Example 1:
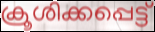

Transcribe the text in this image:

ക്രൂശിക്കപ്പെട്ട്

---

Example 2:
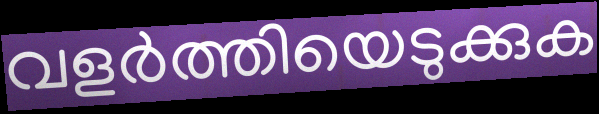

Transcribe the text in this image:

വളർത്തിയെടുക്കുക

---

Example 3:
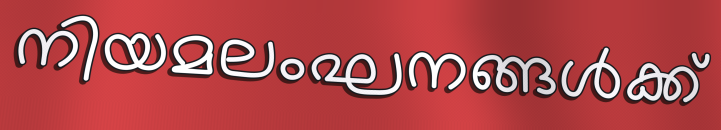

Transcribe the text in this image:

നിയമലംഘനങ്ങൾക്ക്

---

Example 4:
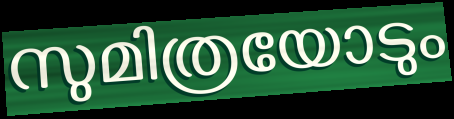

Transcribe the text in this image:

സുമിത്രയോടും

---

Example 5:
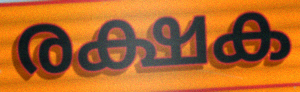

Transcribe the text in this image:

രക്ഷക